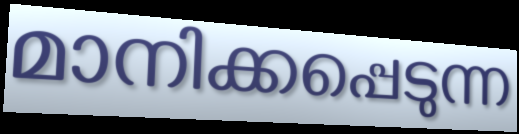
മാനിക്കപ്പെടുന്ന